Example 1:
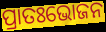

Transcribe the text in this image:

ପ୍ରାତଃଭୋଜନ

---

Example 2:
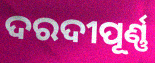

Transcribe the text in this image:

ଦରଦୀପୂର୍ଣ୍ଣ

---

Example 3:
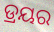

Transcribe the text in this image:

ଡ୍ରୟର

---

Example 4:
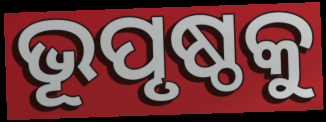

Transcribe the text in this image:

ଭୂପୃଷ୍ଠକୁ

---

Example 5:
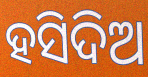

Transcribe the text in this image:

ହସିଦିଅ